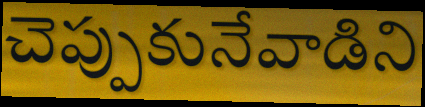
చెప్పుకునేవాడిని